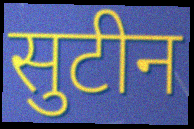
सुटीन